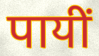
पायीं